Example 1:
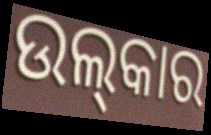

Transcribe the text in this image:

ଉଲ୍‍କାର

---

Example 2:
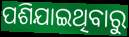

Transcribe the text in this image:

ପଶିଯାଇଥିବାରୁ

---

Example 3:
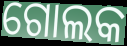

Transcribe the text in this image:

ଗୋଲକ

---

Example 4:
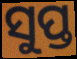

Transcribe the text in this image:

ସୁପ୍ତ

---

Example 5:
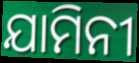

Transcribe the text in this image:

ଯାମିନୀ